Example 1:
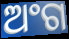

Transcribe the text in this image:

ଅଂଗ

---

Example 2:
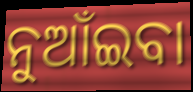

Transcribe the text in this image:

ନୁଆଁଇବା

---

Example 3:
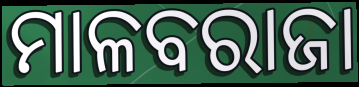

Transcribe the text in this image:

ମାଳବରାଜା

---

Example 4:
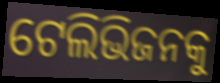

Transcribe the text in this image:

ଟେଲିଭିଜନକୁ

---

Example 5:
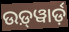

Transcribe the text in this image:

ଉଡ଼୍‍ୱାର୍ଡ଼